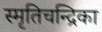
स्मृतिचन्द्रिका